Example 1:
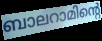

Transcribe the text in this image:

ബാലറാമിന്റെ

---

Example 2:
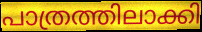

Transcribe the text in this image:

പാത്രത്തിലാക്കി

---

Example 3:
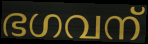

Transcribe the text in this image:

ഭഗവന്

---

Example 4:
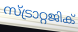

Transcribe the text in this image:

സ്ട്രാറ്റജിക്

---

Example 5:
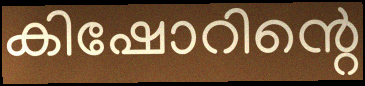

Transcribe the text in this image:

കിഷോറിന്റെ